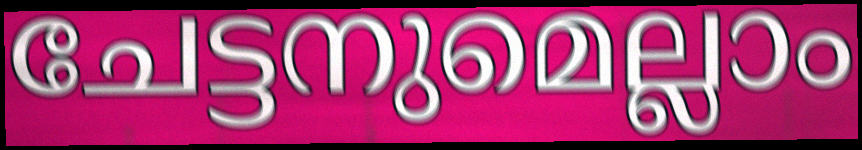
ചേട്ടനുമെല്ലാം